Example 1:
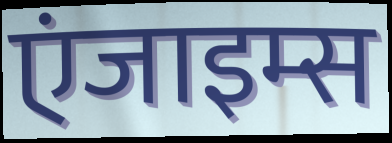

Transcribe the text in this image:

एंजाइम्‍स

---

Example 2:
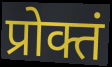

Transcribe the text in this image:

प्रोक्तं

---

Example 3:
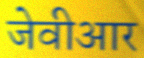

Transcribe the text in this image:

जेवीआर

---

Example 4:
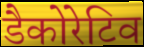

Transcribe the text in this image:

डैकोरेटिव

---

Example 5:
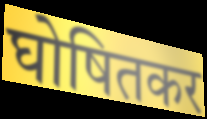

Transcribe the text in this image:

घोषितकर